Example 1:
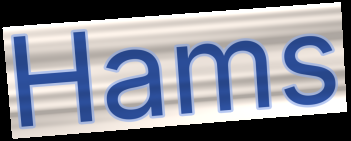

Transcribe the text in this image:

Hams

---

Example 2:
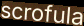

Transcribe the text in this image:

scrofula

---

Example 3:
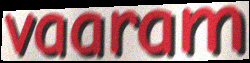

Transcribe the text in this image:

vaaram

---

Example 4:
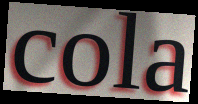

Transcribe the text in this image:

cola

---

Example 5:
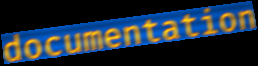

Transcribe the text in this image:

documentation